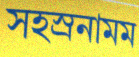
সহস্রনামম